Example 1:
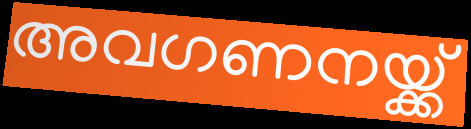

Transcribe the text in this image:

അവഗണനയ്ക്ക്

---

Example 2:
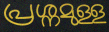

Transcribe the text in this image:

പ്രശ്നമുള്ള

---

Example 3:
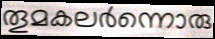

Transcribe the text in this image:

തൂമകലർന്നൊരു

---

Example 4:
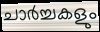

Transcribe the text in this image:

ചാർച്ചകളും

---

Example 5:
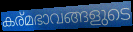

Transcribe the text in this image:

കര്മഭാവങ്ങളുടെ